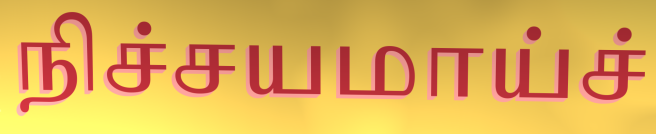
நிச்சயமாய்ச்